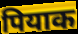
पियाक